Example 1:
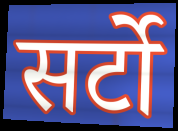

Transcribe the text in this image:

सर्टो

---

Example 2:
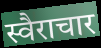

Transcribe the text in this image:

स्वैराचार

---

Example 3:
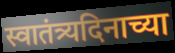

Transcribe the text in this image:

स्वातंत्र्यदिनाच्या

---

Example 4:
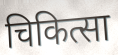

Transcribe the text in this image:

चिकित्सा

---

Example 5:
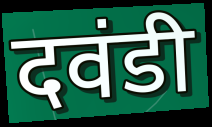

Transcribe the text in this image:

दवंडी